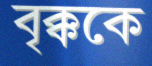
বৃক্ককে